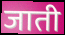
जाती